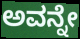
ಅವನ್ನೇ